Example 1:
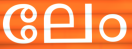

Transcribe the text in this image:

ലേം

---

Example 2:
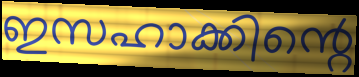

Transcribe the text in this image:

ഇസഹാക്കിന്റെ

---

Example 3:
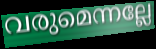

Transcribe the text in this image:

വരുമെന്നല്ലേ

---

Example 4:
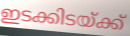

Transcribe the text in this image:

ഇടക്കിടയ്ക്ക്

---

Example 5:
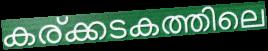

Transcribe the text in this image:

കര്ക്കടകത്തിലെ